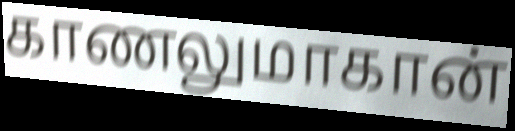
காணலுமாகான்